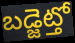
బడ్జెట్తో